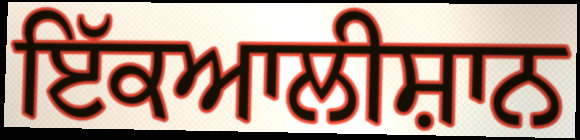
ਇੱਕਆਲੀਸ਼ਾਨ